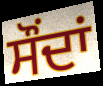
ਸੌਂਦਾਂ